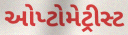
ઓપ્ટોમેટ્રીસ્ટ